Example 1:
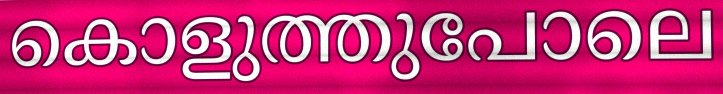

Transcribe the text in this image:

കൊളുത്തുപോലെ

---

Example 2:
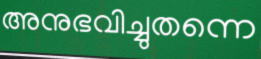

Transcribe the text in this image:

അനുഭവിച്ചുതന്നെ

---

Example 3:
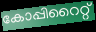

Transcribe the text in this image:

കോപ്പിറൈറ്റ്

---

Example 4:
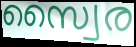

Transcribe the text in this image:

സ്വൈര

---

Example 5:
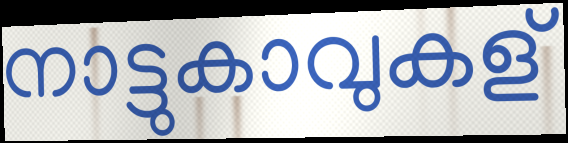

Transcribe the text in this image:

നാട്ടുകാവുകള്